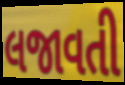
લજાવતી